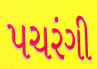
પચરંગી